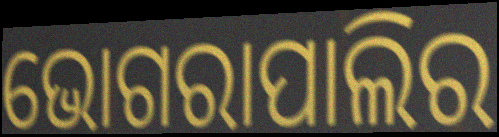
ଭୋଗରାପାଲିର